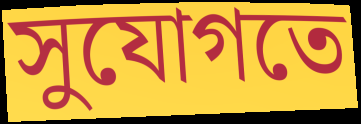
সুযোগতে